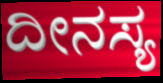
ದೀನಸ್ಯ